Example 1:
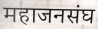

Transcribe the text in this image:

महाजनसंघ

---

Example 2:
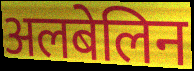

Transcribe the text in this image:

अलबेलिन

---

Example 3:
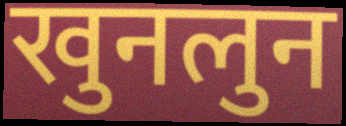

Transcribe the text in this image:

खुनलुन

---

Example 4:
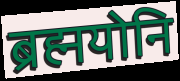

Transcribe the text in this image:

ब्रह्मयोनि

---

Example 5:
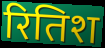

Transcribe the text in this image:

रितिश